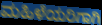
ಮಹಿಳೆಯರಿಗಾಗಿ